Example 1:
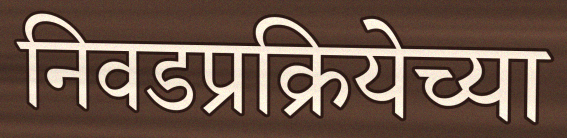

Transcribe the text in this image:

निवडप्रक्रियेच्या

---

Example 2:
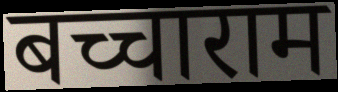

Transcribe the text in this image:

बच्चाराम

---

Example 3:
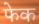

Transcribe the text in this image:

फेक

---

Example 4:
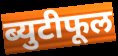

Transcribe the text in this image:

ब्युटीफूल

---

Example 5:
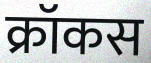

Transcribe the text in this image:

क्रॉकस